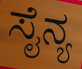
ಸೈನ್ಯ